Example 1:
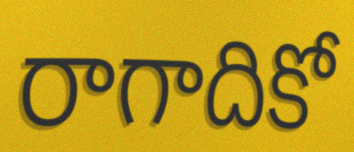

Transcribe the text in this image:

రాగాదికో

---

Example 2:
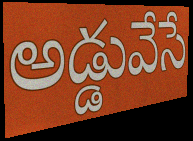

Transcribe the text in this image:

అడ్డువేసే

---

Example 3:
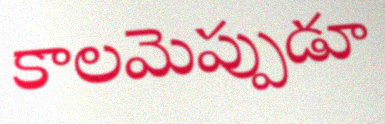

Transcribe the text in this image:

కాలమెప్పుడూ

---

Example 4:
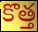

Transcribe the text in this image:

కొత్త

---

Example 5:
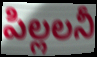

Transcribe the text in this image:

పిల్లలనీ